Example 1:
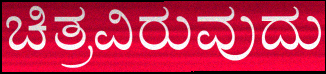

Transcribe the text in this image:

ಚಿತ್ರವಿರುವುದು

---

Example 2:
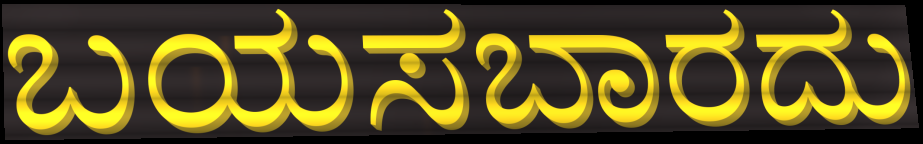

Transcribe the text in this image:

ಬಯಸಬಾರದು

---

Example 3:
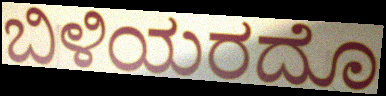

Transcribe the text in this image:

ಬಿಳಿಯರದೊ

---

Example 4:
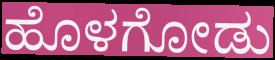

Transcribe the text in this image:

ಹೊಳಗೋಡು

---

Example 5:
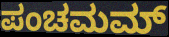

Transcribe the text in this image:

ಪಂಚಮಮ್